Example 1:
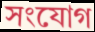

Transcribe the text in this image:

সংযোগ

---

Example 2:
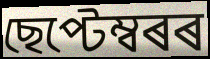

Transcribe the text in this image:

ছেপ্টেম্বৰৰ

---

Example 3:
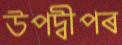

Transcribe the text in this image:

উপদ্বীপৰ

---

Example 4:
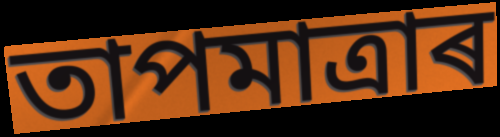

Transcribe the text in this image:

তাপমাত্ৰাৰ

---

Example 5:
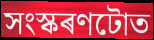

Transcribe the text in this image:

সংস্কৰণটোত